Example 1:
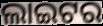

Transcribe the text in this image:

ଲାଇଟର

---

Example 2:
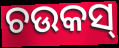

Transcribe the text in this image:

ଚଉକସ୍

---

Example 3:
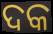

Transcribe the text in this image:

ଦକ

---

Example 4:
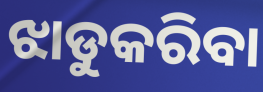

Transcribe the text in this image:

ଝାଡୁକରିବା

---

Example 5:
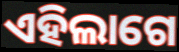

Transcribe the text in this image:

ଏହିଲାଗେ